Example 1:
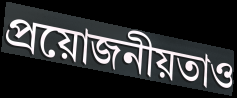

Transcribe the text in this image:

প্ৰয়োজনীয়তাও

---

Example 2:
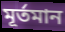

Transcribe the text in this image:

মূৰ্তমান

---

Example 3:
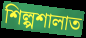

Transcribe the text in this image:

শিল্পশালাত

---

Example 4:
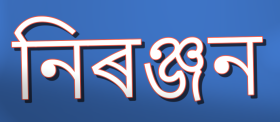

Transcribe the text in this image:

নিৰঞ্জন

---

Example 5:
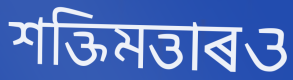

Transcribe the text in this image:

শক্তিমত্তাৰও